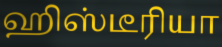
ஹிஸ்டீரியா